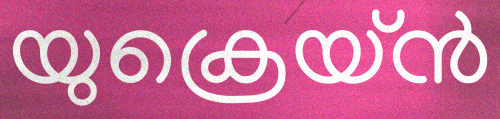
യുക്രെയ്ൻ